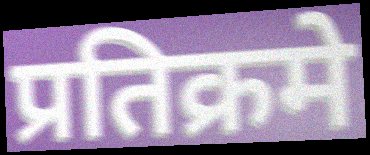
प्रतिक्रमे